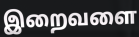
இறைவளை